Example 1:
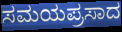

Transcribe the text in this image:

ಸಮಯಪ್ರಸಾದ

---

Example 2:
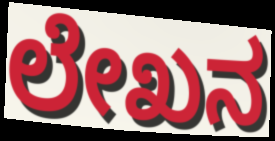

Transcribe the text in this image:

ಲೇಖನ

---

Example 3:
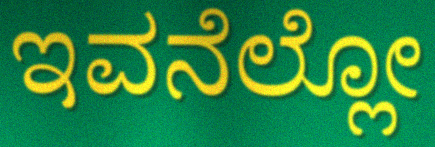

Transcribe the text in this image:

ಇವನೆಲ್ಲೋ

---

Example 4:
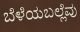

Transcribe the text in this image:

ಬೆಳೆಯಬಲ್ಲೆವು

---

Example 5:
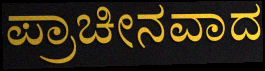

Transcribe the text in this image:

ಪ್ರಾಚೀನವಾದ